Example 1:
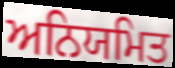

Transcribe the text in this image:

ਅਨਿਯਮਿਤ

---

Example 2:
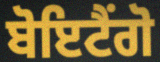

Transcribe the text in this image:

ਬੋਇਟੈਂਗੋ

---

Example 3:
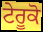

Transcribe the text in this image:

ਟੇਰੂਕੋ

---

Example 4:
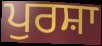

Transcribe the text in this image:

ਪੁਰਸ਼ਾ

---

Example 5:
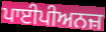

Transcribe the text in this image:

ਪਾਈਪੀਅਨਜ਼